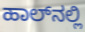
ಹಾಲ್‌ನಲ್ಲಿ